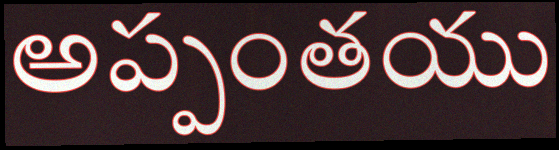
అప్పంతయు